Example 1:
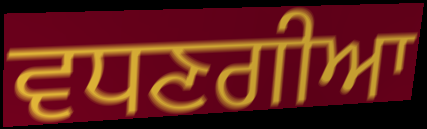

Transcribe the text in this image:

ਵਧਣਗੀਆ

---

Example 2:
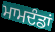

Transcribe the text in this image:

ਮਾਮਦੰਡਾਂ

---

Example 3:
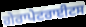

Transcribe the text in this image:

ਗੇਰਾਪੇਟਰਾਈਟਸ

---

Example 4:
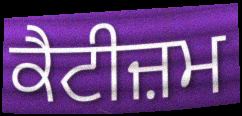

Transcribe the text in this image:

ਕੈਟੀਜ਼ਮ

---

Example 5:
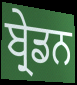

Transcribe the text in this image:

ਬ੍ਰੇਡਨ